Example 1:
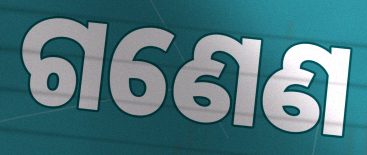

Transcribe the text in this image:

ଗଣେଣ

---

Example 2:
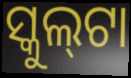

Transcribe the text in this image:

ସ୍କୁଲ୍‍ଟା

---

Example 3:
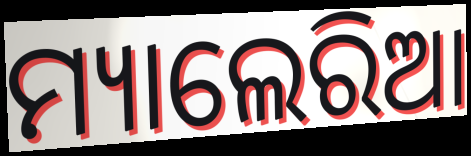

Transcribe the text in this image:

ମ୍ଯାଲେରିଆ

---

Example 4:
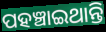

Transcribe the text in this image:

ପହଞ୍ଚାଇଥାନ୍ତି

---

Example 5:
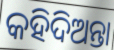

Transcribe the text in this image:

କହିଦିଅନ୍ତା